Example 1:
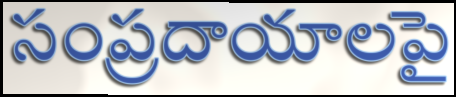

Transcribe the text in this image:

సంప్రదాయాలపై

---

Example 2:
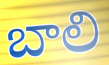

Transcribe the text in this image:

బాలి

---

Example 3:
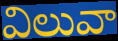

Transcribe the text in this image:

విలువా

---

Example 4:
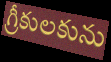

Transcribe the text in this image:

గ్రీకులకును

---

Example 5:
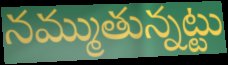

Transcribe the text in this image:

నమ్ముతున్నట్టు